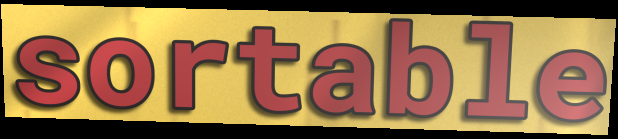
sortable